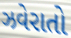
ઝવેરાતો